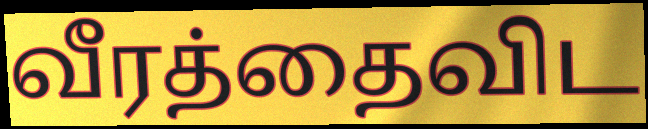
வீரத்தைவிட